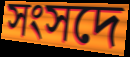
সংসদে